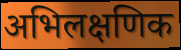
अभिलक्षणिक